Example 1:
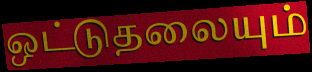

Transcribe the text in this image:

ஒட்டுதலையும்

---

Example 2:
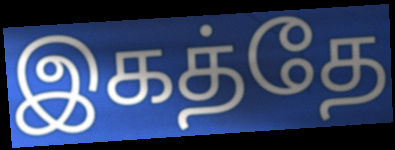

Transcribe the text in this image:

இகத்தே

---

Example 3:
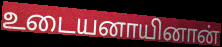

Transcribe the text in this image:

உடையனாயினான்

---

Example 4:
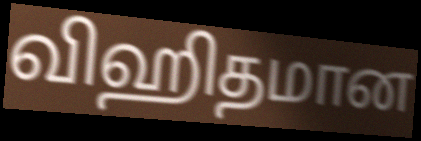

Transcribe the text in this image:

விஹிதமான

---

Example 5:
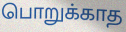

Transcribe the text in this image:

பொறுக்காத